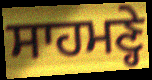
ਸਾਹਮਣ੍ਹੇ